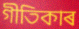
গীতিকাৰ